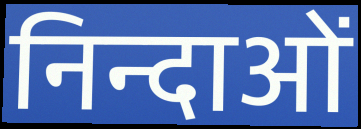
निन्दाओं